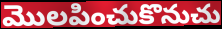
మొలపించుకొనుచు